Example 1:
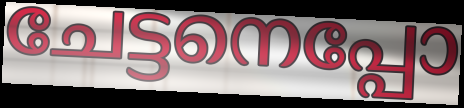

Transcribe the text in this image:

ചേട്ടനെപ്പോ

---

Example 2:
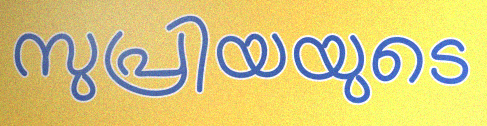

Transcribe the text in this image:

സുപ്രിയയുടെ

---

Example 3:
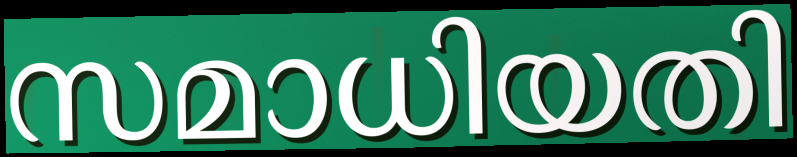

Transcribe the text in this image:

സമാധിയതി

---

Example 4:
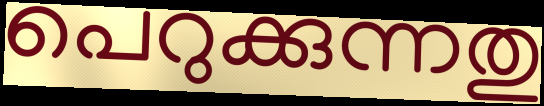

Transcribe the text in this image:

പെറുക്കുന്നതു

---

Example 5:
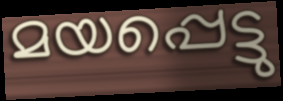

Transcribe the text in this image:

മയപ്പെട്ടു